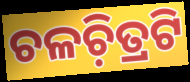
ଚଳଚ଼ିତ୍ରଟି